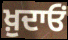
ਖ਼ੁਦਾਓਂ